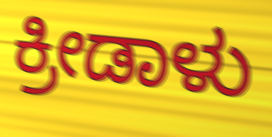
ಕ್ರೀಡಾಳು